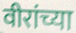
वीरांच्या